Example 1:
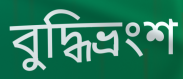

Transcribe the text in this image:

বুদ্ধিভ্রংশ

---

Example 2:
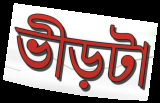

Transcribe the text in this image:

ভীড়টা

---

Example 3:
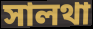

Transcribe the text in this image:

সালথা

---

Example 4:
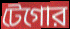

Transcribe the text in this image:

টেগোর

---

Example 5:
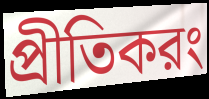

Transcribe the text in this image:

প্রীতিকরং